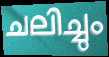
ചലിച്ചും